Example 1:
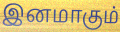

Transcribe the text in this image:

இனமாகும்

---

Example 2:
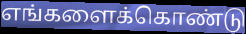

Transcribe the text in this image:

எங்களைக்கொண்டு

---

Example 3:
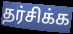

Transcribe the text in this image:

தர்சிக்க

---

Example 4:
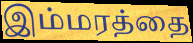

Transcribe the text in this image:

இம்மரத்தை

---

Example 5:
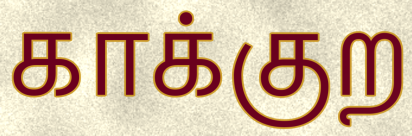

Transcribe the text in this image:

காக்குற